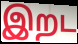
இறட